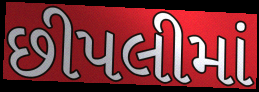
છીપલીમાં